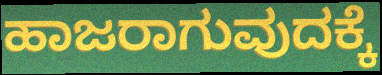
ಹಾಜರಾಗುವುದಕ್ಕೆ